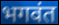
भगवंत